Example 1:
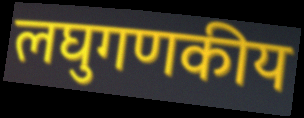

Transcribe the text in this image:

लघुगणकीय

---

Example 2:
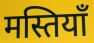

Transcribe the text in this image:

मस्तियाँ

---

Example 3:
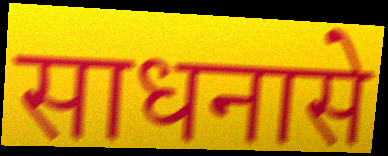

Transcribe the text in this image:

साधनासे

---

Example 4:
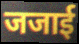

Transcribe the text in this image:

जजाई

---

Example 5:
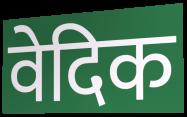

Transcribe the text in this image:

वेदिक